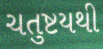
ચતુષ્ટયથી